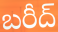
బరీద్